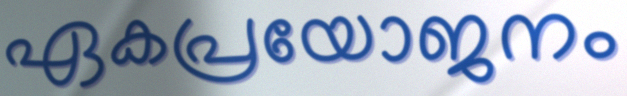
ഏകപ്രയോജനം